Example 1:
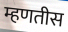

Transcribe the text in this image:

म्हणतीस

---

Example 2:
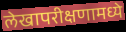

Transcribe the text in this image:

लेखापरीक्षणामध्ये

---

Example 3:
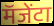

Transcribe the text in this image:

मॅजेंटा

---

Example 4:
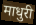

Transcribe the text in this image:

माधुरी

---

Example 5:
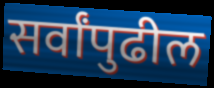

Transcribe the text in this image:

सर्वांपुढील